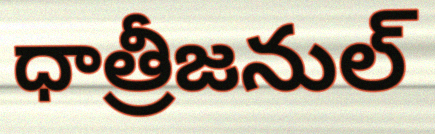
ధాత్రీజనుల్